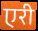
एरी